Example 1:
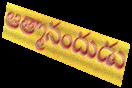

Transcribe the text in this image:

ఆత్మానందుడు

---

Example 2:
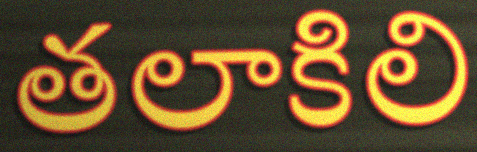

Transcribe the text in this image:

తలాకిలి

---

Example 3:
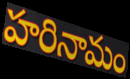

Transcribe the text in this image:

హరినామం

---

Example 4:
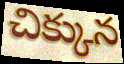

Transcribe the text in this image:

చిక్కున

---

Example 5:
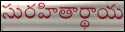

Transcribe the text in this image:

సురహితార్థాయ